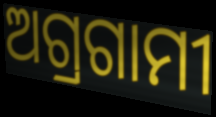
ଅଗ୍ରଗାମୀ